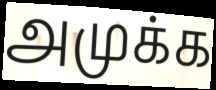
அமுக்க